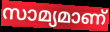
സാമ്യമാണ്